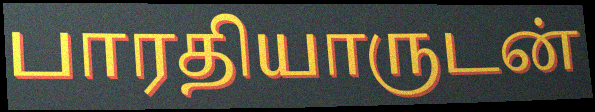
பாரதியாருடன்